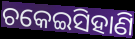
ଚକେଇସିହାଣି